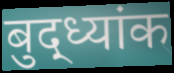
बुद्ध्यांक